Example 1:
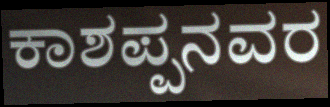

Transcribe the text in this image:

ಕಾಶಪ್ಪನವರ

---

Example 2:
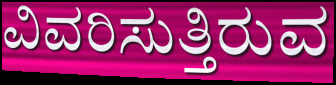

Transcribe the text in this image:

ವಿವರಿಸುತ್ತಿರುವ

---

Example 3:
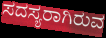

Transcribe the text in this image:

ಸದಸ್ಯರಾಗಿರುವ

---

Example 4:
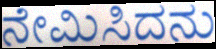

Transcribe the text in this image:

ನೇಮಿಸಿದನು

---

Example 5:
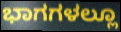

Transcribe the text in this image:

ಭಾಗಗಳಲ್ಲೂ